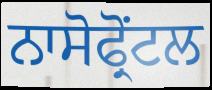
ਨਾਸੋਫ੍ਰੋਂਟਲ